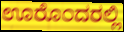
ಊರೊಂದರಲ್ಲಿ